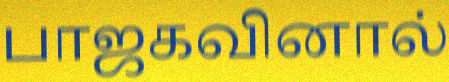
பாஜகவினால்